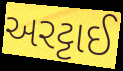
અરટ્ટાઈ